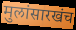
मुलांसारखंच